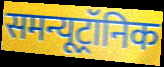
समन्यूट्रॉनिक